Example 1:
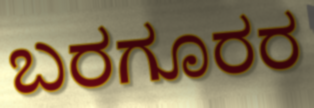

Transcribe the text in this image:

ಬರಗೂರರ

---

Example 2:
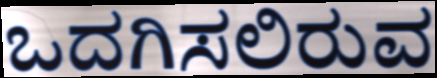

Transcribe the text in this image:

ಒದಗಿಸಲಿರುವ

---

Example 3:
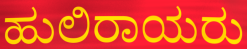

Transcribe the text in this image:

ಹುಲಿರಾಯರು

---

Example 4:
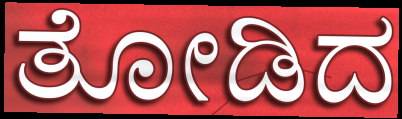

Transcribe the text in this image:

ತೋಡಿದ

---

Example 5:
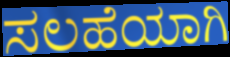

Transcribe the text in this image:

ಸಲಹೆಯಾಗಿ